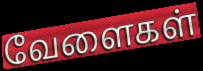
வேளைகள்